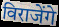
विराजेंगे